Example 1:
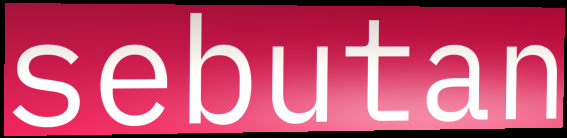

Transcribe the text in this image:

sebutan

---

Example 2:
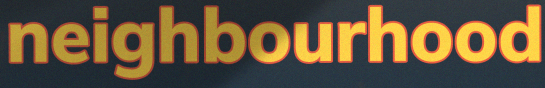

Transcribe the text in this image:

neighbourhood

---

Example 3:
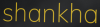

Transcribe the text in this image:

shankha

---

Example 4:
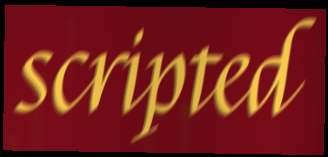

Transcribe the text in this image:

scripted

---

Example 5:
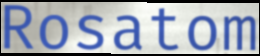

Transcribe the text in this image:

Rosatom